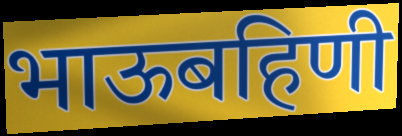
भाऊबहिणी